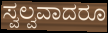
ಸ್ವಲ್ವವಾದರೂ